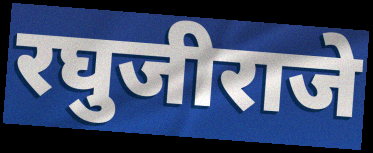
रघुजीराजे